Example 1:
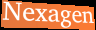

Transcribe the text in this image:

Nexagen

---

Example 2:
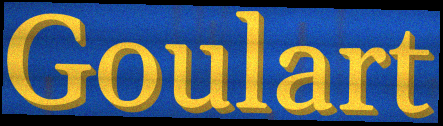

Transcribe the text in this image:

Goulart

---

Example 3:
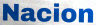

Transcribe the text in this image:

Nacion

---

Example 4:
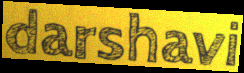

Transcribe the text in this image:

darshavi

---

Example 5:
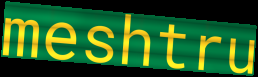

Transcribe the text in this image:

meshtru